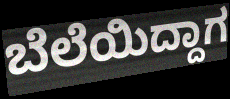
ಬೆಲೆಯಿದ್ದಾಗ